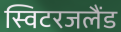
स्विटरजलैंड